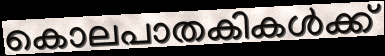
കൊലപാതകികൾക്ക്